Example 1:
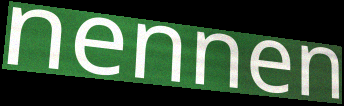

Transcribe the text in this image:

nennen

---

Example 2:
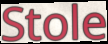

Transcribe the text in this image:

Stole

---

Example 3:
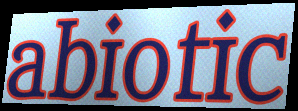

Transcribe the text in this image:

abiotic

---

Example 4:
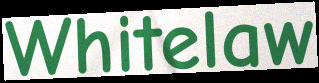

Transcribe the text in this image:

Whitelaw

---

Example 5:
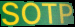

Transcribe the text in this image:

SOTP